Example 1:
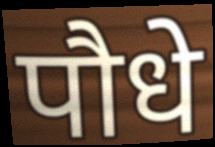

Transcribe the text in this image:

पौधे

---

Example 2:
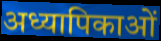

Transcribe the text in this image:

अध्यापिकाओं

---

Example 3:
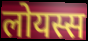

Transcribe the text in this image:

लोयस्स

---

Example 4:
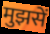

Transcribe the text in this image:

मुझसें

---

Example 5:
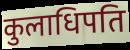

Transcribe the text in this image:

कुलाधिपति